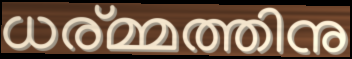
ധര്മ്മത്തിനു